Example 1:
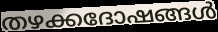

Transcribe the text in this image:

തഴക്കദോഷങ്ങൾ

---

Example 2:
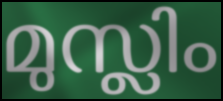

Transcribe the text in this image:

മുസ്ലിം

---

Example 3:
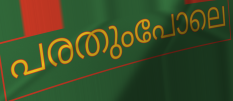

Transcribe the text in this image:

പരതുംപോലെ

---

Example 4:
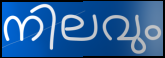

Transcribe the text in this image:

നിലവും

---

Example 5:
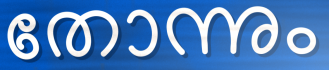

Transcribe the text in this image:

തോന്നും